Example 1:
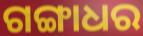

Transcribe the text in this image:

ଗଙ୍ଗାଧର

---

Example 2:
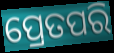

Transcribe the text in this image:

ପ୍ରେତପରି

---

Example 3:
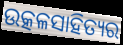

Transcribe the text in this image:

ଉତ୍କଳସାହିତ୍ୟର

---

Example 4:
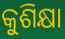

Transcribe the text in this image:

କୁଶିକ୍ଷା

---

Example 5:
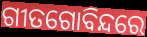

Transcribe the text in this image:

ଗୀତଗୋବିନ୍ଦରେ